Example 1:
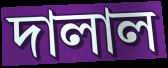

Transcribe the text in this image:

দালাল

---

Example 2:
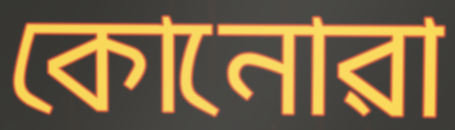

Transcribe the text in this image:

কোনোৱা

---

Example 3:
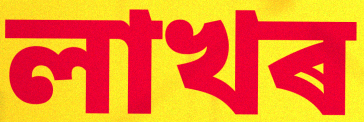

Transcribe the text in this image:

লাখৰ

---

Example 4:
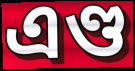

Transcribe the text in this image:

এণ্ড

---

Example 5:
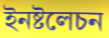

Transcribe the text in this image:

ইনষ্টলেচন